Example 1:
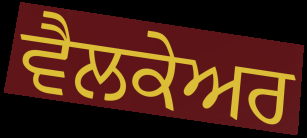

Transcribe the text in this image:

ਵੈਲਕੇਅਰ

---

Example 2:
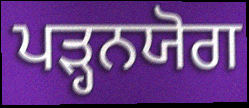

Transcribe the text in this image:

ਪੜ੍ਹਨਯੋਗ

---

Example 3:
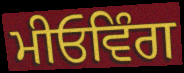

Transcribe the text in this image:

ਮੀਓਵਿੰਗ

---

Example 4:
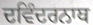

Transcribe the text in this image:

ਦਵਿੰਦਰਨਾਥ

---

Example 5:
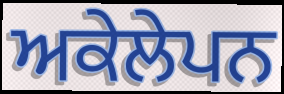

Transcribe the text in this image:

ਅਕੇਲੇਪਨ